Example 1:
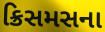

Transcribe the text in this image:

ક્રિસમસના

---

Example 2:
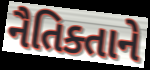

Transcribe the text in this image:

નૈતિક્તાને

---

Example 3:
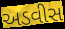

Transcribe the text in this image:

અડવીસ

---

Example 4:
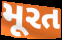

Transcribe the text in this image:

મૂરત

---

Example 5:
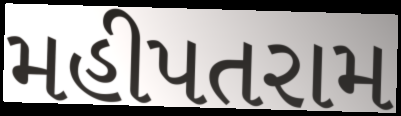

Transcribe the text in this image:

મહીપતરામ